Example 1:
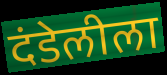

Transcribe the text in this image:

दंडेलीला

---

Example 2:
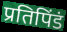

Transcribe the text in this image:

प्रतिपिंडं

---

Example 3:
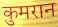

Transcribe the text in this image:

कुमरान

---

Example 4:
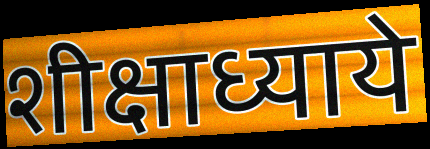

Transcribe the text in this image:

शीक्षाध्याये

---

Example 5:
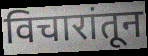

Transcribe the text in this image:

विचारांतून